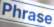
Phrase